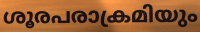
ശൂരപരാക്രമിയും